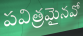
పవిత్రమైనవో